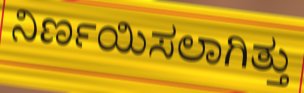
ನಿರ್ಣಯಿಸಲಾಗಿತ್ತು